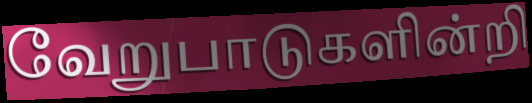
வேறுபாடுகளின்றி